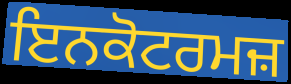
ਇਨਕੋਟਰਮਜ਼